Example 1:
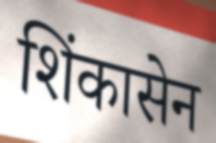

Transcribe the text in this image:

शिंकासेन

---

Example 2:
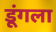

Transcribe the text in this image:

डूंगला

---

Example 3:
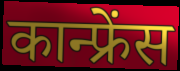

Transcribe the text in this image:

कान्फ्रेंस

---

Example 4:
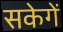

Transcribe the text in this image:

सकेगें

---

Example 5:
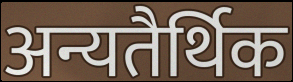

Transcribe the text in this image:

अन्यतैर्थिक